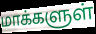
மாக்களுள்